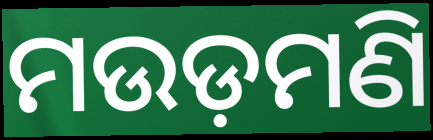
ମଉଡ଼ମଣି